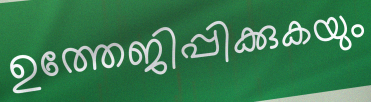
ഉത്തേജിപ്പിക്കുകയും